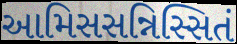
આમિસસન્નિસ્સિતં